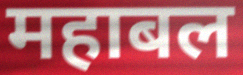
महाबल